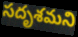
సదృశమని